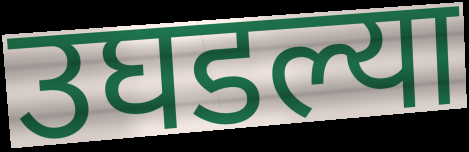
उघडल्या